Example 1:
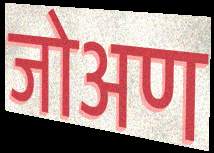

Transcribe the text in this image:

जोअण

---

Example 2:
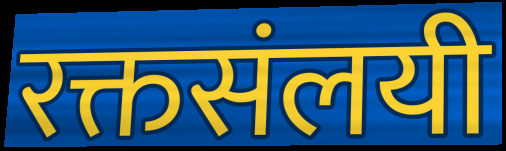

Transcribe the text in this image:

रक्तसंलयी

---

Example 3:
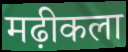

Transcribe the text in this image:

मढ़ीकला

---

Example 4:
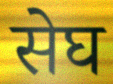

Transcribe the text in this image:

सेघ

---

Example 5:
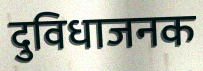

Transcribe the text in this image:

दुविधाजनक